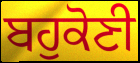
ਬਹੁਕੋਣੀ